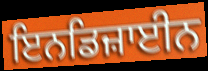
ਇਨਡਿਜ਼ਾਈਨ